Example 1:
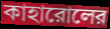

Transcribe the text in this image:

কাহারোলের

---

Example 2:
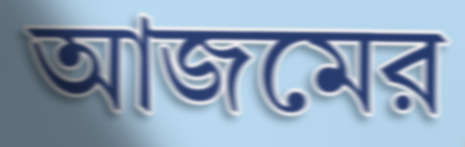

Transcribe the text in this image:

আজমের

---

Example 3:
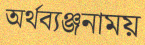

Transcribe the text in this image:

অর্থব্যঞ্জনাময়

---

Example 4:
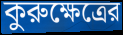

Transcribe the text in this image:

কুরুক্ষেত্রের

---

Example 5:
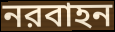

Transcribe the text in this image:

নরবাহন